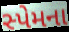
સ્પેમના